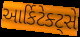
આર્કિટેક્ટ્સે